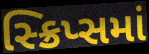
સ્ક્રિપ્સમાં